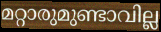
മറ്റാരുമുണ്ടാവില്ല